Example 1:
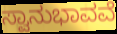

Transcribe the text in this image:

ಸ್ವಾನುಭಾವವೆ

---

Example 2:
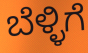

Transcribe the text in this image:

ಬೆಳ್ಳಿಗೆ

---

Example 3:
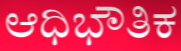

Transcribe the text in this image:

ಆಧಿಭೌತಿಕ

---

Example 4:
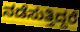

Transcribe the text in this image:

ನಡೆಸುತ್ತಿದ್ದರೆ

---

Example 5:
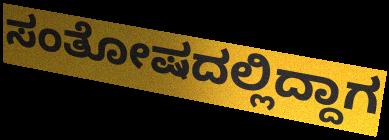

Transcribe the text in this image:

ಸಂತೋಷದಲ್ಲಿದ್ದಾಗ